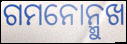
ଗମନୋନ୍ମୁଖ